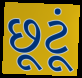
છૂટૂં